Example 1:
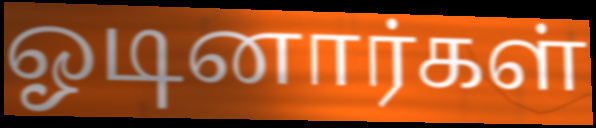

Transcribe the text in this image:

ஓடினார்கள்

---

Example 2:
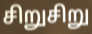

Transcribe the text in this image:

சிறுசிறு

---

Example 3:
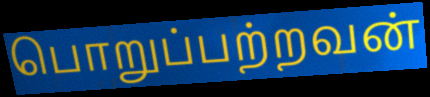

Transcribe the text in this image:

பொறுப்பற்றவன்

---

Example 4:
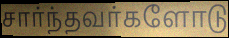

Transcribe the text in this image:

சார்ந்தவர்களோடு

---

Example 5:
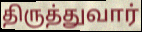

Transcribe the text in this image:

திருத்துவார்